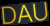
DAU